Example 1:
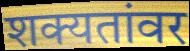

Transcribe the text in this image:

शक्यतांवर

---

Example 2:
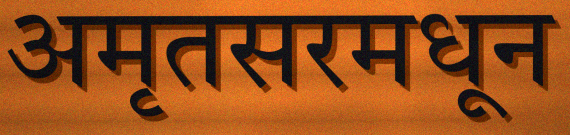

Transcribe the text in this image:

अमृतसरमधून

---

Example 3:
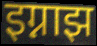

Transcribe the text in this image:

इग्नाझ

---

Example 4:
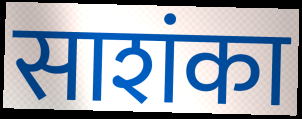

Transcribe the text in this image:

साशंका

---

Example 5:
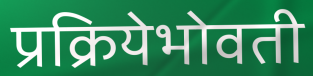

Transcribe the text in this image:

प्रक्रियेभोवती